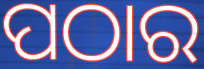
ପଠାର